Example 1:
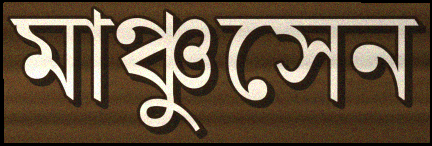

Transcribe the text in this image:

মাঞ্চুসেন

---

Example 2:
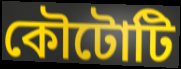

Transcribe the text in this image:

কৌটোটি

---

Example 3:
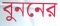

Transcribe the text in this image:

বুননের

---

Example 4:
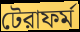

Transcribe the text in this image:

টেরাফর্ম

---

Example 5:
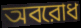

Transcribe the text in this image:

অবরোধ